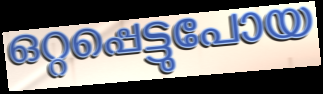
ഒറ്റപ്പെട്ടുപോയ